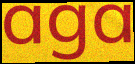
aga